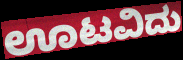
ಊಟವಿದು